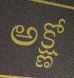
అక్ష్ణో